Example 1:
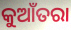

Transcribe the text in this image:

କୁଆଁତରା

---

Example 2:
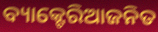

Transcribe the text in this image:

ବ୍ୟାକ୍ଟେରିଆଜନିତ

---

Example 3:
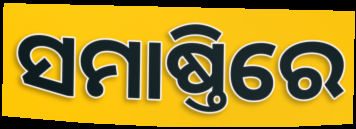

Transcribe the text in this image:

ସମାଷ୍ତିରେ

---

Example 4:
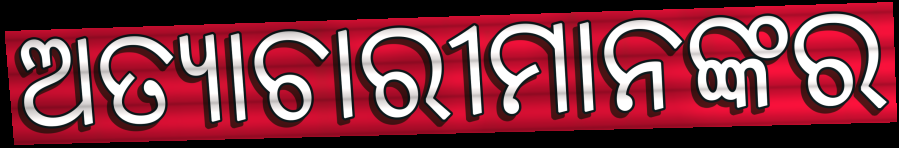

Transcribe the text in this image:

ଅତ୍ୟାଚାରୀମାନଙ୍କର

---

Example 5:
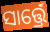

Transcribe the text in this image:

ସାର୍ତ୍ତ୍ରେ